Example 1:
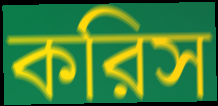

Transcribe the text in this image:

করিস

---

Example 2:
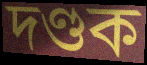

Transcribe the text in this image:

দণ্ডক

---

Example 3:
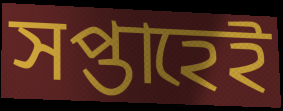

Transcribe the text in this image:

সপ্তাহেই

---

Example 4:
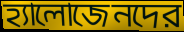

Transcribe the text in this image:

হ্যালোজেনদের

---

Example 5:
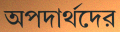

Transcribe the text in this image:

অপদার্থদের